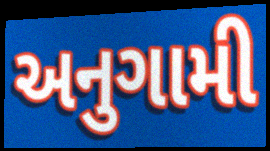
અનુગામી